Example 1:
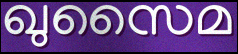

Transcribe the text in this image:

ഖുസൈമ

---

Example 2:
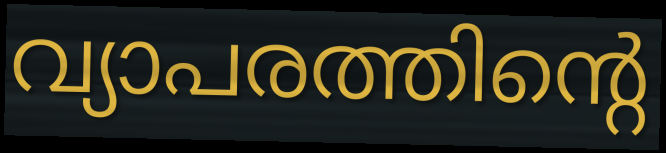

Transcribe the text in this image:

വ്യാപരത്തിന്റെ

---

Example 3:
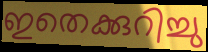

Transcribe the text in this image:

ഇതെക്കുറിച്ചു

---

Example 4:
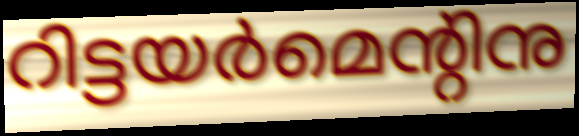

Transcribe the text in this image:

റിട്ടയർമെന്റിനു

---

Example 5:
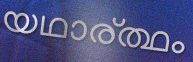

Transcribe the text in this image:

യഥാര്ത്ഥം